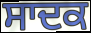
ਸਾਦਕ